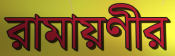
রামায়ণীর